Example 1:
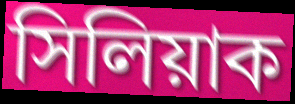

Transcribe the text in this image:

সিলিয়াক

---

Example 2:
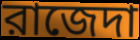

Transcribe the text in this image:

রাজেদা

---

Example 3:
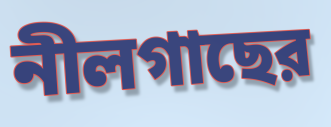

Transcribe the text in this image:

নীলগাছের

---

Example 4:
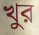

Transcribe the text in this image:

খুর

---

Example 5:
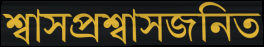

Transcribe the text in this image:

শ্বাসপ্রশ্বাসজনিত